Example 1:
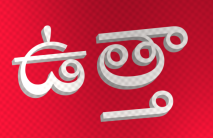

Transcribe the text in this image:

ఉత్తా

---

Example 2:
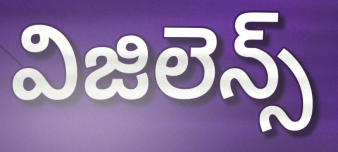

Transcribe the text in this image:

విజిలెన్స్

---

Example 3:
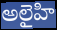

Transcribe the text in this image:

అలైహి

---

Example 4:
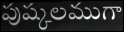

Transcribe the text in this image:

పుష్కలముగా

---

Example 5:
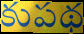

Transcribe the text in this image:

కుపథ